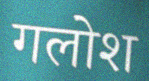
गलोश